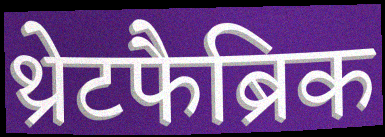
थ्रेटफैब्रिक